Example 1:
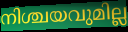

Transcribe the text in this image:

നിശ്ചയവുമില്ല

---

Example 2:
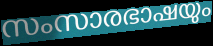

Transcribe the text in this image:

സംസാരഭാഷയും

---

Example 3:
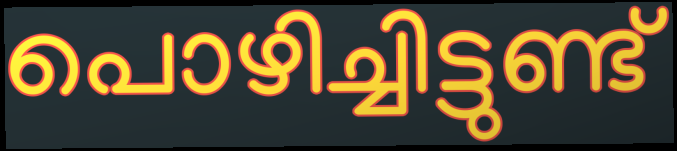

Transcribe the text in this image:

പൊഴിച്ചിട്ടുണ്ട്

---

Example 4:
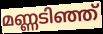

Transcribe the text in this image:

മണ്ണടിഞ്ഞ്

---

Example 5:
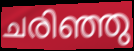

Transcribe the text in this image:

ചരിഞ്ഞു